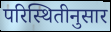
परिस्थितीनुसार